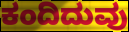
ಕಂದಿದುವು